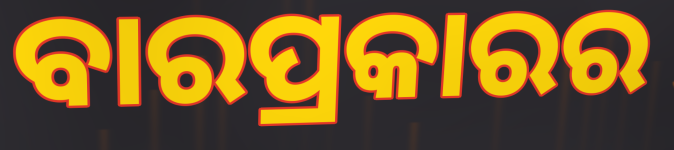
ବାରପ୍ରକାରର